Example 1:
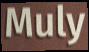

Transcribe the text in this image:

Muly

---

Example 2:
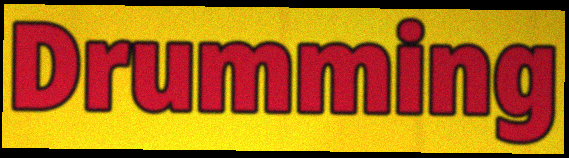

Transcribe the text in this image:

Drumming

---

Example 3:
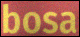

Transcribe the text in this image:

bosa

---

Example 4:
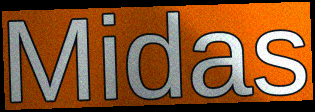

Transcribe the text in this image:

Midas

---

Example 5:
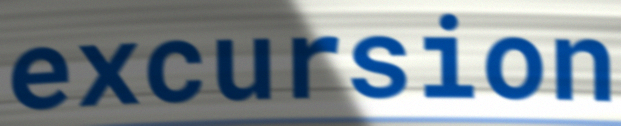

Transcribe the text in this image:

excursion